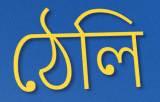
ঠেলি